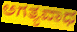
ಅಗತ್ಯವಾಧ